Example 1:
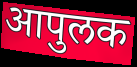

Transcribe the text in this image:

आपुलक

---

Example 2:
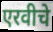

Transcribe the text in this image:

एरवीचे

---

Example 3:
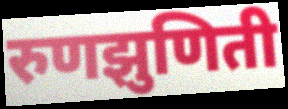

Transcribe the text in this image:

रुणझुणिती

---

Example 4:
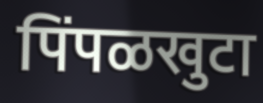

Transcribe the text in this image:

पिंपळखुटा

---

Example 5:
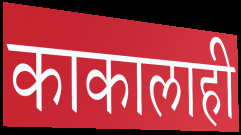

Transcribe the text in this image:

काकालाही